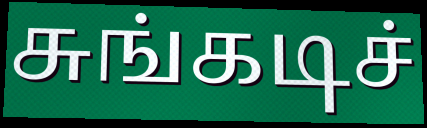
சுங்கடிச்